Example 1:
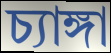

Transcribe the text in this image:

চ্যাঙ্গা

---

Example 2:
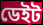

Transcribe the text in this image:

ডেইট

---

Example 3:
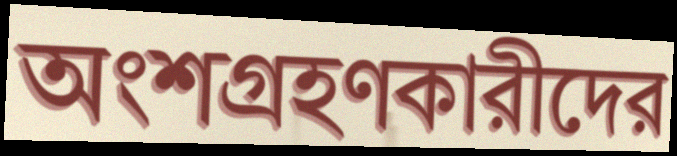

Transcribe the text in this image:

অংশগ্রহণকারীদের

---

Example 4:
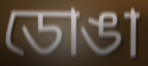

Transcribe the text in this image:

ডোঙা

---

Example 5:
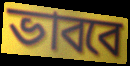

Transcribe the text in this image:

ভাববে